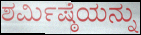
ಶರ್ಮಿಷ್ಠೆಯನ್ನು